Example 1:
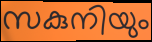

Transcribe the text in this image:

സകുനിയും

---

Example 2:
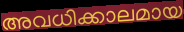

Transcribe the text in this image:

അവധിക്കാലമായ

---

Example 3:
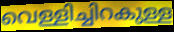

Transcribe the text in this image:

വെള്ളിച്ചിറകുള്ള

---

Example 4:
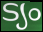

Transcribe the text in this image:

ട്യം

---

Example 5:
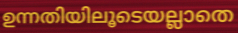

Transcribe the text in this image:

ഉന്നതിയിലൂടെയല്ലാതെ